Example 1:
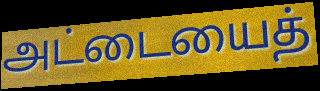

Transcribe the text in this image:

அட்டையைத்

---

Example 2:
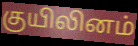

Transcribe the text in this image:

குயிலினம்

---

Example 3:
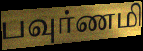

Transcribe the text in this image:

பவுர்ணமி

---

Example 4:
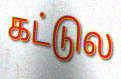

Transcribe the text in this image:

கட்டுல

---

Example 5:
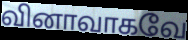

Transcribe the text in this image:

வினாவாகவே